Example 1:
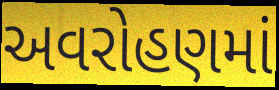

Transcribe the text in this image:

અવરોહણમાં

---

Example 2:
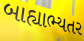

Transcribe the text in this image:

બાહ્યાભ્યતર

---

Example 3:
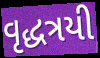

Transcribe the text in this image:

વૃદ્ધત્રયી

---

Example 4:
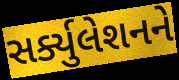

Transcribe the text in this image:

સર્ક્યુલેશનને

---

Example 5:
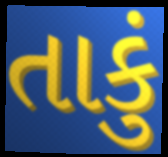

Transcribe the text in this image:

તાકું